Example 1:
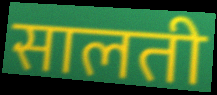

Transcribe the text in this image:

सालती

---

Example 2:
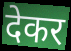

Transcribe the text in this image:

देकर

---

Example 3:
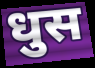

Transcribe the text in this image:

धुस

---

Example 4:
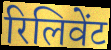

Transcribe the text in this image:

रिलिवेंट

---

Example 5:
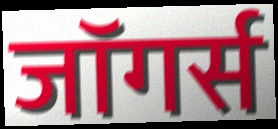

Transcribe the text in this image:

जॉगर्स